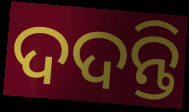
ଦଦନ୍ତି